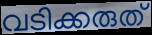
വടിക്കരുത്